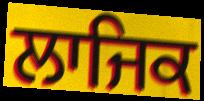
ਲਾਜਿਕ